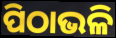
ପିଠାଭଳି